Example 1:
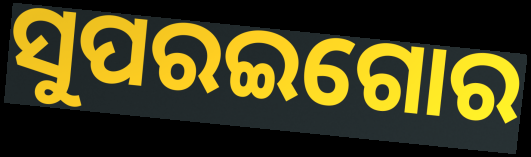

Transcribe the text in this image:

ସୁପରଇଗୋର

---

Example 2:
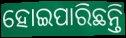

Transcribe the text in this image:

ହୋଇପାରିଛନ୍ତି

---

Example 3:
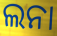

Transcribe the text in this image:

ଲନା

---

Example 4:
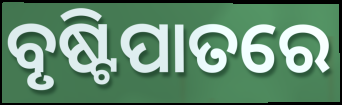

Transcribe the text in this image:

ବୃଷ୍ଟିପାତରେ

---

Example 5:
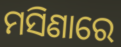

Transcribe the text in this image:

ମସିଣାରେ